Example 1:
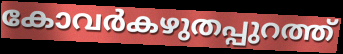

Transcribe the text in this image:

കോവർകഴുതപ്പുറത്ത്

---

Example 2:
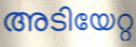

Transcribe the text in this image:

അടിയേറ്റ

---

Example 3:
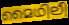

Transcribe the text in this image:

മൈഥിലീ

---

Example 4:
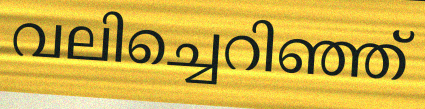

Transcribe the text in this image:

വലിച്ചെറിഞ്ഞ്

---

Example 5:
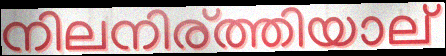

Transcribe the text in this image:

നിലനിര്ത്തിയാല്